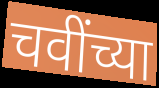
चवींच्या